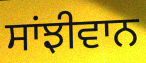
ਸਾਂਝੀਵਾਨ